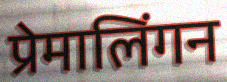
प्रेमालिंगन